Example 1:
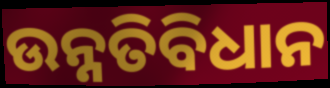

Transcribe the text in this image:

ଉନ୍ନତିବିଧାନ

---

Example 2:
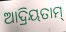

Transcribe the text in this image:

ଆଦ୍ରିୟତାମ୍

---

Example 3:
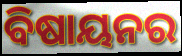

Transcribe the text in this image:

ବିଷାୟନର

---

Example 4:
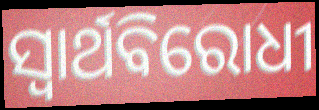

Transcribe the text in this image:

ସ୍ବାର୍ଥବିରୋଧୀ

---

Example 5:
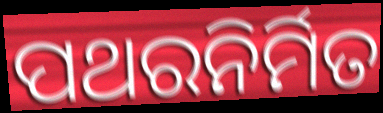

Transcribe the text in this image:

ପଥରନିର୍ମିତ